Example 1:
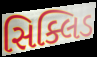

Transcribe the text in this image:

સિક્લિડ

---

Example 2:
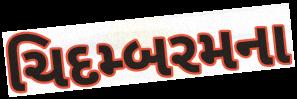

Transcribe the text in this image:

ચિદમ્બરમના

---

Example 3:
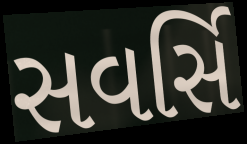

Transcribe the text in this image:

સવર્સિ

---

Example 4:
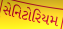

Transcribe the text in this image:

સેનિટોરિયમ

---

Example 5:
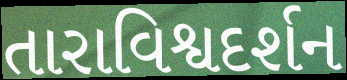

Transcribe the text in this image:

તારાવિશ્વદર્શન